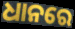
ଧାନରେ